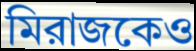
মিরাজকেও